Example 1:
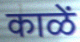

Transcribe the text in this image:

काळें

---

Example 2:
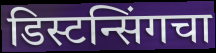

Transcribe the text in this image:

डिस्टन्सिंगचा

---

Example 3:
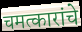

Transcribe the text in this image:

चमत्कारांचे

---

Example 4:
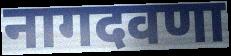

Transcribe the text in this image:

नागदवणा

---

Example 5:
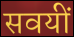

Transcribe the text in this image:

सवयीं